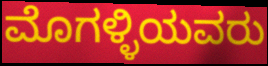
ಮೊಗಳ್ಳಿಯವರು